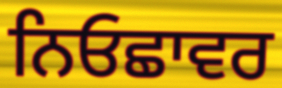
ਨਿਓਛਾਵਰ